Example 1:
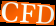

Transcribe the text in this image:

CFD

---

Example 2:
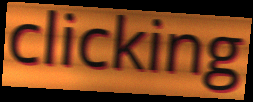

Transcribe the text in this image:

clicking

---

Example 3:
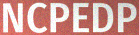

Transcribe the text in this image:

NCPEDP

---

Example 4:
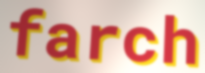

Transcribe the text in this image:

farch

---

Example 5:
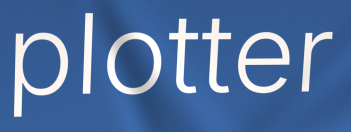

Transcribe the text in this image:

plotter